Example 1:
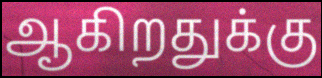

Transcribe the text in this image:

ஆகிறதுக்கு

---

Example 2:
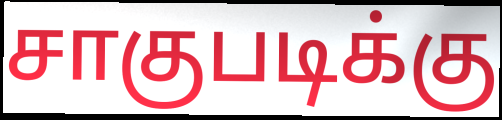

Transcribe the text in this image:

சாகுபடிக்கு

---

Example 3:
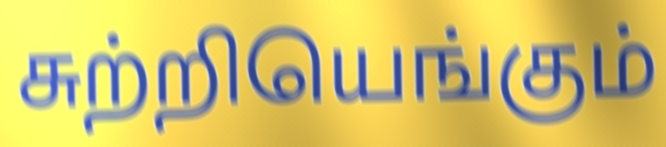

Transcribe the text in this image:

சுற்றியெங்கும்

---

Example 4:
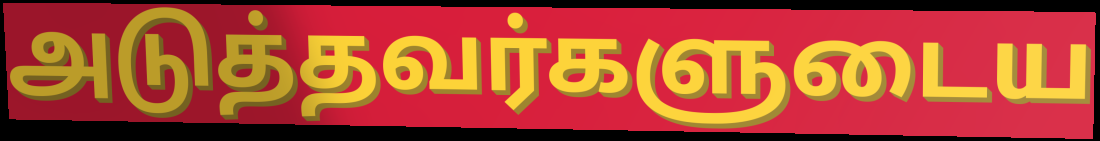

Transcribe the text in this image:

அடுத்தவர்களுடைய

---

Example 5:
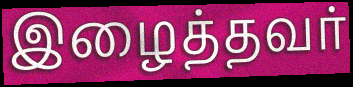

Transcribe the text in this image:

இழைத்தவர்